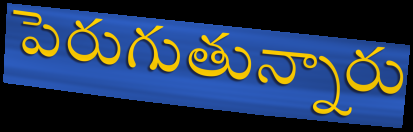
పెరుగుతున్నారు